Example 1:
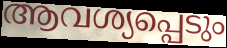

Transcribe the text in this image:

ആവശ്യപ്പെടും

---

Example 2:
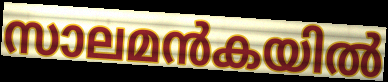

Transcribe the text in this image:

സാലമൻകയിൽ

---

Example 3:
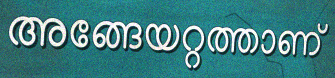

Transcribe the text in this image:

അങ്ങേയറ്റത്താണ്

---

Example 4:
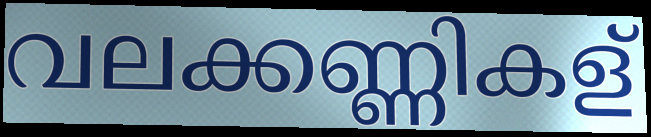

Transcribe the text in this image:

വലക്കണ്ണികള്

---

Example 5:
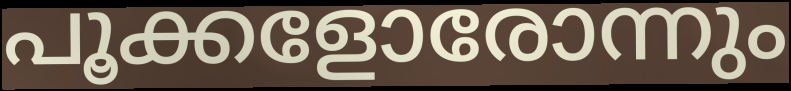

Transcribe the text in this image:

പൂക്കളോരോന്നും